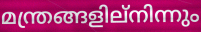
മന്ത്രങ്ങളില്നിന്നും